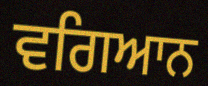
ਵਗਿਆਨ